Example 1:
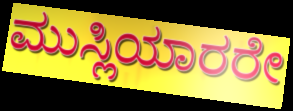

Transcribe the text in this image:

ಮುಸ್ಲಿಯಾರರೇ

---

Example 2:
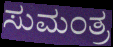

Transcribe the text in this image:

ಸುಮಂತ್ರ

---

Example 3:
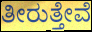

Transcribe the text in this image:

ತೀರುತ್ತೇವೆ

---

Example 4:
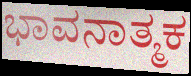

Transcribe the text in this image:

ಭಾವನಾತ್ಮಕ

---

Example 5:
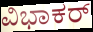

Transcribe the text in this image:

ವಿಭಾಕರ್